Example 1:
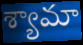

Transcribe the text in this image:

శ్యామా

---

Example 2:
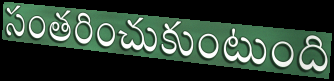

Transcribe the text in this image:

సంతరించుకుంటుంది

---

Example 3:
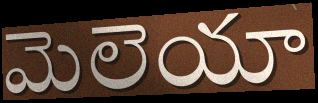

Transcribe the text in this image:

మెలెయా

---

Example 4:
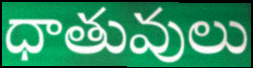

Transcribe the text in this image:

ధాతువులు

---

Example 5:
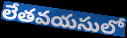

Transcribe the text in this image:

లేతవయసులో